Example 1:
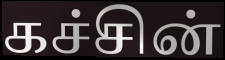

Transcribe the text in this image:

கச்சின்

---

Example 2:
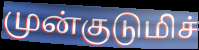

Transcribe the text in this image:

முன்குடுமிச்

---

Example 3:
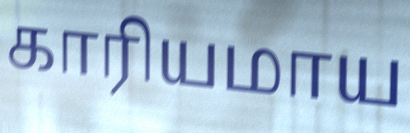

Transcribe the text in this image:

காரியமாய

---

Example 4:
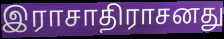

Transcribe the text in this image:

இராசாதிராசனது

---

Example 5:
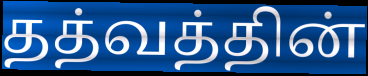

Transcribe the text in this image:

தத்வத்தின்